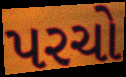
પરચો